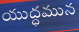
యుద్ధమున